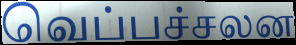
வெப்பச்சலன